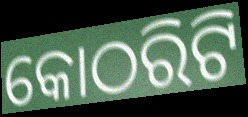
କୋଠରିଟି